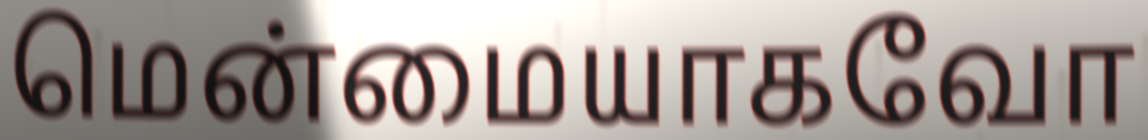
மென்மையாகவோ